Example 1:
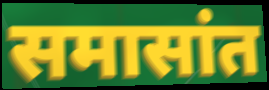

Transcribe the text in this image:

समासांत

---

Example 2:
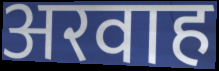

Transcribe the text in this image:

अरवाह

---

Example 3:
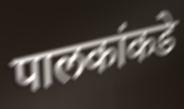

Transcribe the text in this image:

पालकांकडे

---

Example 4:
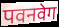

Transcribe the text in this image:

पवनवेग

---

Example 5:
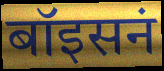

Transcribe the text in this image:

बॉइसनं